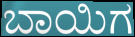
ಬಾಯಿಗ